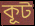
কূট